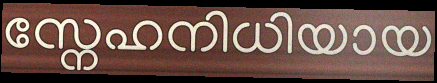
സ്നേഹനിധിയായ